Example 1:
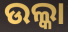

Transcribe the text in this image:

ଉଲ୍କା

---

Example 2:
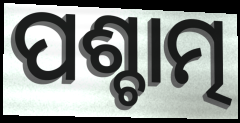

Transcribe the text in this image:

ପଶ୍ଚାତ୍ମ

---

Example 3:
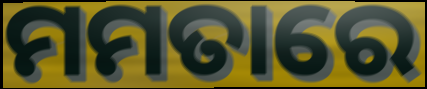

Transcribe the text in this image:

ମମତାରେ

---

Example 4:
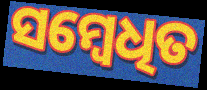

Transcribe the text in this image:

ସମ୍ବେଧିତ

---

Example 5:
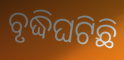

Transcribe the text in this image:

ବୃଦ୍ଧିଘଟିଛି